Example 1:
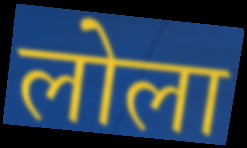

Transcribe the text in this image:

लोला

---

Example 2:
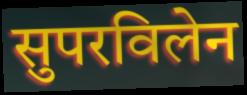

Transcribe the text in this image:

सुपरविलेन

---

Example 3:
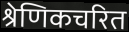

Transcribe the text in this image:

श्रेणिकचरित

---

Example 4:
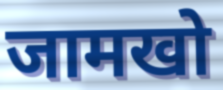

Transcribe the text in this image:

जामखो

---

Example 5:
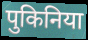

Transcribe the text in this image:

पुकिनिया